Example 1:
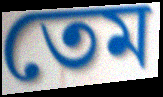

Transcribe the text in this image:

তেম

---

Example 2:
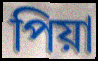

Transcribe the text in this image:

পিয়া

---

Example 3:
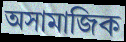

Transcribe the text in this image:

অসামাজিক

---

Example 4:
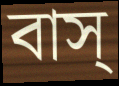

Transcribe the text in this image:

বাস্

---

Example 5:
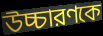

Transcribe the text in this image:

উচ্চারণকে